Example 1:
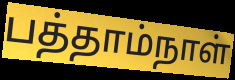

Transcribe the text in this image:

பத்தாம்நாள்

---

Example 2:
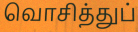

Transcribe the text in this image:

வொசித்துப்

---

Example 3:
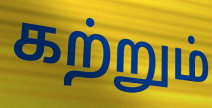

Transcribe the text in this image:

கற்றும்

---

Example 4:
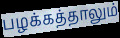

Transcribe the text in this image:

பழக்கத்தாலும்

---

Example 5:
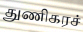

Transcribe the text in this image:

துணிகரச்